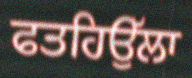
ਫਤਹਿਉੱਲਾ